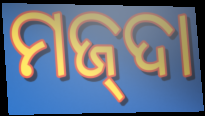
ମଜ୍‌ଦା